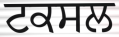
ਟਕਸਲ